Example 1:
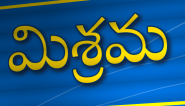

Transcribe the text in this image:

మిశ్రమ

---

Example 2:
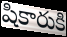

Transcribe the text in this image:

షికారుకి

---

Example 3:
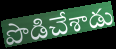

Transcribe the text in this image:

పొడిచేశాడు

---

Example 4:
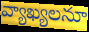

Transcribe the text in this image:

వ్యాఖ్యలనూ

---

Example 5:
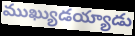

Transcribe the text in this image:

ముఖ్యుడయ్యాడు